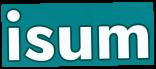
isum